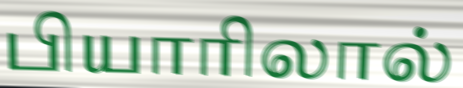
பியாரிலால்